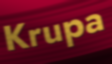
Krupa